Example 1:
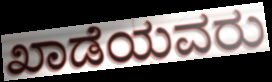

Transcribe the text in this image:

ಖಾಡೆಯವರು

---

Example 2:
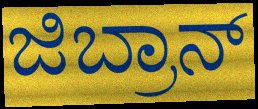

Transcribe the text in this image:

ಜಿಬ್ರಾನ್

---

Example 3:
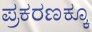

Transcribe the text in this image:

ಪ್ರಕರಣಕ್ಕೂ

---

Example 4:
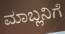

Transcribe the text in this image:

ಮಾಬ್ಲನಿಗೆ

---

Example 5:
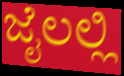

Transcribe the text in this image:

ಜೈಲಲ್ಲಿ